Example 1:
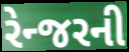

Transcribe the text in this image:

રેન્જરની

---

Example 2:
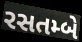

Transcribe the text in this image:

રસતમ્બે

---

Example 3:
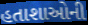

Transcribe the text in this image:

હતાશાઓની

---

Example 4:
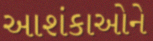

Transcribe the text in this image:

આશંકાઓને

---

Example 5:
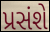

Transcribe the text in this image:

પ્રસંશે